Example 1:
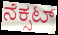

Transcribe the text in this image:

ನೆಕ್ಸಟ್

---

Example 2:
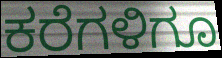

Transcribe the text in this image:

ಕರೆಗಳಿಗೂ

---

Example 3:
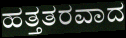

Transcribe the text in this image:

ಹತ್ತತರವಾದ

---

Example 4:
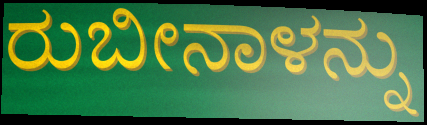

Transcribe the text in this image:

ರುಬೀನಾಳನ್ನು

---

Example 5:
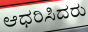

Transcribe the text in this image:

ಆಧರಿಸಿದರು